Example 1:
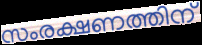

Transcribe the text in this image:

സംരക്ഷണത്തിന്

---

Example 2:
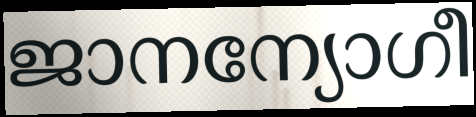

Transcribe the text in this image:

ജാനന്യോഗീ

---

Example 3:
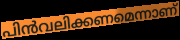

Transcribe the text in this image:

പിൻവലിക്കണമെന്നാണ്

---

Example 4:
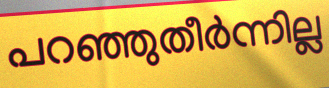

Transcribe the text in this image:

പറഞ്ഞുതീർന്നില്ല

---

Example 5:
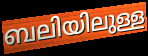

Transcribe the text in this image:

ബലിയിലുള്ള